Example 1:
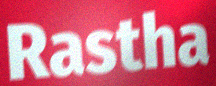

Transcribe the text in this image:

Rastha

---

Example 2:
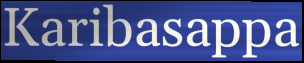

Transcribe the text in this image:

Karibasappa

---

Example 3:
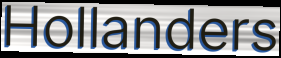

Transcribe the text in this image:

Hollanders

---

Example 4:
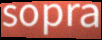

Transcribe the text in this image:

sopra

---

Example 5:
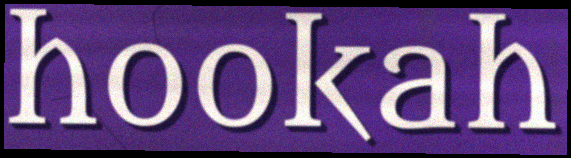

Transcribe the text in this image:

hookah